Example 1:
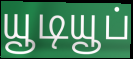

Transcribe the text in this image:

யூடியூப்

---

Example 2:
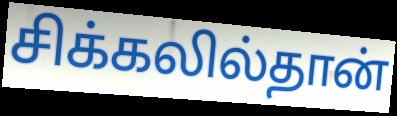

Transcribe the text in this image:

சிக்கலில்தான்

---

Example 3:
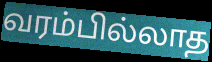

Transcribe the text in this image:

வரம்பில்லாத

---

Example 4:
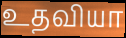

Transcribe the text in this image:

உதவியா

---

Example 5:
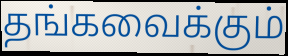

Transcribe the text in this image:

தங்கவைக்கும்